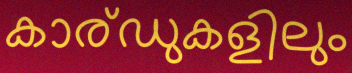
കാര്ഡുകളിലും